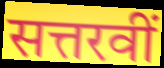
सत्तरवीं